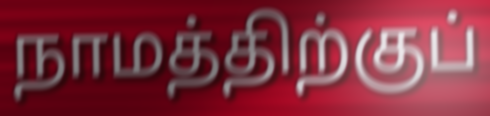
நாமத்திற்குப்